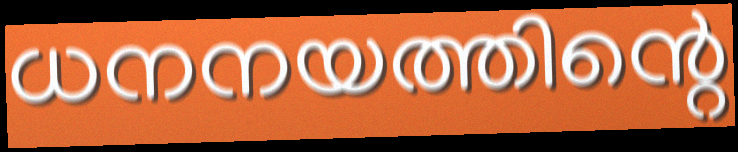
ധനനയത്തിന്റെ